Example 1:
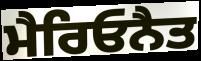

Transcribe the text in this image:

ਮੈਰਿਓਨੈਤ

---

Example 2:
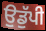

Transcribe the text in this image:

ਉਡੁੱਪੀ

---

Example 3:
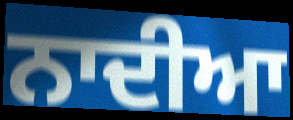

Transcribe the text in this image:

ਨਾਦੀਆ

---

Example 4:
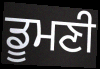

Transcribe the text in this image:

ਡੂਮਣੀ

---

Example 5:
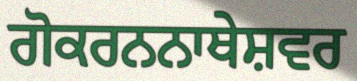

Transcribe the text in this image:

ਗੋਕਰਨਨਾਥੇਸ਼ਵਰ